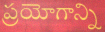
ప్రయోగాన్ని